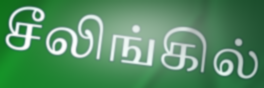
சீலிங்கில்